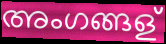
അംഗങ്ങള്